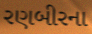
રણબીરના